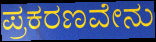
ಪ್ರಕರಣವೇನು